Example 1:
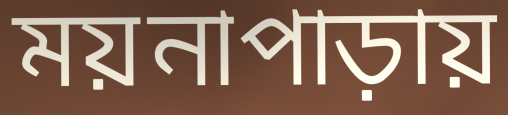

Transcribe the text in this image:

ময়নাপাড়ায়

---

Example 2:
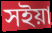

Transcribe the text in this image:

সইয়া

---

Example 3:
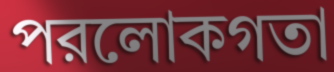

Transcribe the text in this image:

পরলোকগতা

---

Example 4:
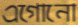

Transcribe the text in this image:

এগোনো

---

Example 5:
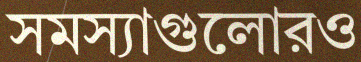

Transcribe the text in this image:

সমস্যাগুলোরও